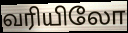
வரியிலோ